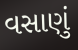
વસાણું